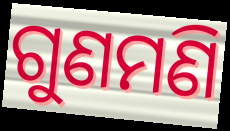
ଗୁଣମଣି